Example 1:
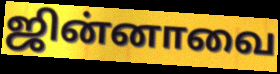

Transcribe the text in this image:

ஜின்னாவை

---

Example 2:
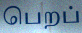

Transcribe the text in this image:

பெறப்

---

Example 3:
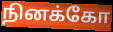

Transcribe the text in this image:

நினக்கோ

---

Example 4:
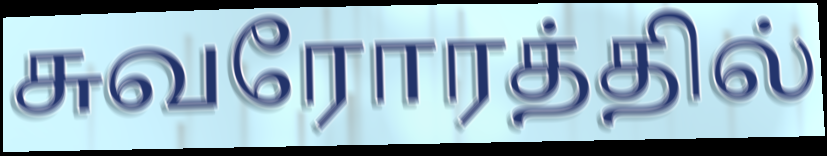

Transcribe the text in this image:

சுவரோரத்தில்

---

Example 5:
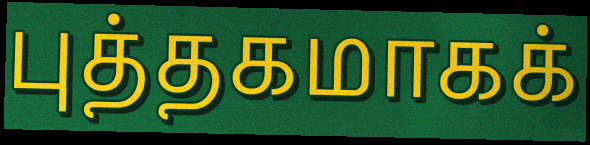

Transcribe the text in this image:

புத்தகமாகக்